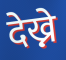
देख्ने